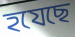
হযেছে